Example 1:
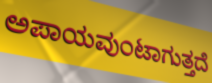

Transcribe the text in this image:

ಅಪಾಯವುಂಟಾಗುತ್ತದೆ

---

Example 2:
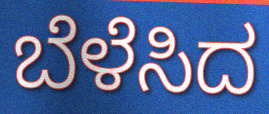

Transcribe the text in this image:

ಬೆಳೆಸಿದ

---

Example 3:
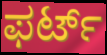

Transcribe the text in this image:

ಫರ್ಟ್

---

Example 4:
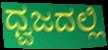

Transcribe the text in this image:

ಧ್ವಜದಲ್ಲಿ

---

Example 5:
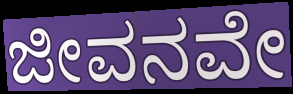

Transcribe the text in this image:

ಜೀವನವೇ